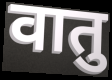
वातु